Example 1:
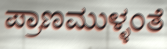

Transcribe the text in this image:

ಪ್ರಾಣಮುಳ್ಳಂತೆ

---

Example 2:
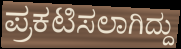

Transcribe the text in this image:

ಪ್ರಕಟಿಸಲಾಗಿದ್ದು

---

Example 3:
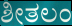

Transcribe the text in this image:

ಶೀತಲಂ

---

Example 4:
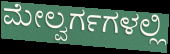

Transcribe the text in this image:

ಮೇಲ್ವರ್ಗಗಳಲ್ಲಿ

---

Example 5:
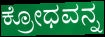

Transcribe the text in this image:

ಕ್ರೋಧವನ್ನ